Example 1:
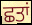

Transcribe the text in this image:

ਛਤਾਂ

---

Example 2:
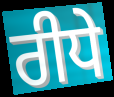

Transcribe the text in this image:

ਰੀਧੇ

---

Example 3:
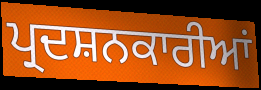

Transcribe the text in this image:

ਪ੍ਰਦਸ਼ਨਕਾਰੀਆਂ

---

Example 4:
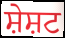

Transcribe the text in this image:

ਸ਼ੇਸ਼ਟ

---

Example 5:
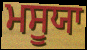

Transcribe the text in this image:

ਮਸੂਯਾ